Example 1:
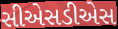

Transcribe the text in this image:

સીએસડીએસ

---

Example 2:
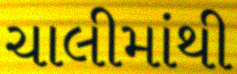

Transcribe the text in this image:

ચાલીમાંથી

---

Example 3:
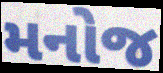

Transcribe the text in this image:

મનોજ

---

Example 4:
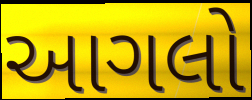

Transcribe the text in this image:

આગલો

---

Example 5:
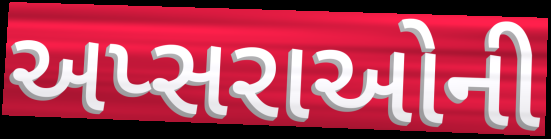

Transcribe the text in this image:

અપ્સરાઓની